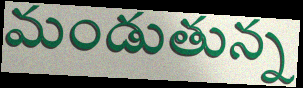
మండుతున్న